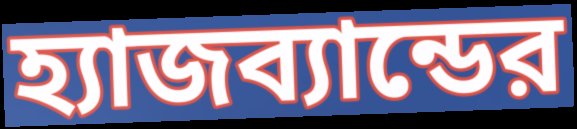
হ্যাজব্যান্ডের